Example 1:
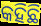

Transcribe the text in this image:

କହିଛି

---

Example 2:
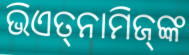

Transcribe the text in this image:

ଭିଏତ୍‌ନାମିଜ୍‌ଙ୍କ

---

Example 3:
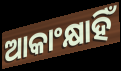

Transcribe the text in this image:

ଆକାଂକ୍ଷାହିଁ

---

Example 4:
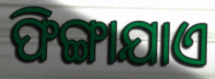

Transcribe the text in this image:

ଫିଙ୍ଗାଯାଏ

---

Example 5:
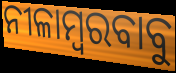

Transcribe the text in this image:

ନୀଳାମ୍ବରବାବୁ